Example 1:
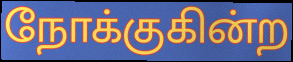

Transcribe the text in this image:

நோக்குகின்ற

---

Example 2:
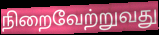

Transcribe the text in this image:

நிறைவேற்றுவது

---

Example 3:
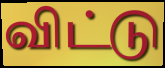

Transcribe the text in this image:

விட்டு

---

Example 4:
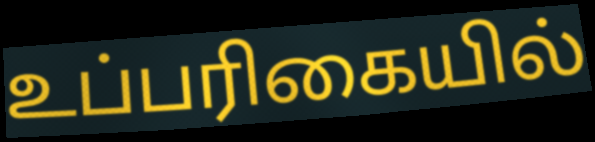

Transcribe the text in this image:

உப்பரிகையில்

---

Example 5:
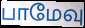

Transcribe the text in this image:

பாமேவு